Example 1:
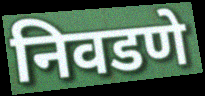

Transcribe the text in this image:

निवडणे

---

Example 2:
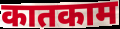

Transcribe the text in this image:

कातकाम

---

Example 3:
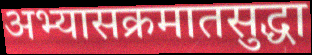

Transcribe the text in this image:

अभ्यासक्रमातसुद्धा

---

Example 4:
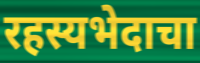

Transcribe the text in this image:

रहस्यभेदाचा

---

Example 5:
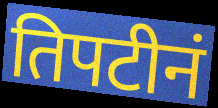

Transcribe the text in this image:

तिपटीनं